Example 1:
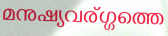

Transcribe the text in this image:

മനുഷ്യവര്ഗ്ഗത്തെ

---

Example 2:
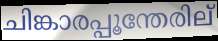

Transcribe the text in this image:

ചിങ്കാരപ്പൂന്തേരില്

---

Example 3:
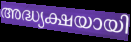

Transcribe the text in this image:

അദ്ധ്യക്ഷയായി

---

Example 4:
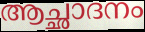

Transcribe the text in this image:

ആച്ഛാദനം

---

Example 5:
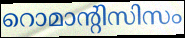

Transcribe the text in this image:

റൊമാന്റിസിസം